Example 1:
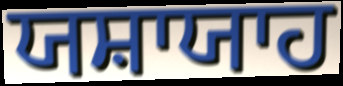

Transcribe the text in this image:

ਯਸ਼ਾਯਾਹ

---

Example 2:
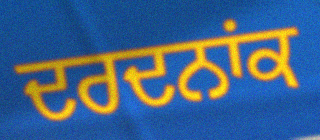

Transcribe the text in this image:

ਦਰਦਨਾਂਕ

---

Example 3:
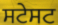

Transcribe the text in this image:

ਸਟੇਸਟ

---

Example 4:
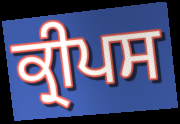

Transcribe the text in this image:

ਕ੍ਰੀਪਸ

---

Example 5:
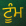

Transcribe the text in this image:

ਟੂੰਮ